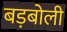
बड़बोली